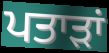
ਪਤਾੜਾਂ